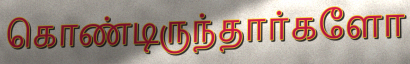
கொண்டிருந்தார்களோ